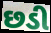
છડી